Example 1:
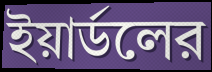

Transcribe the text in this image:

ইয়ার্ডলের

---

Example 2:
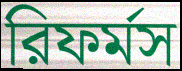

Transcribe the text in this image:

রিফর্মস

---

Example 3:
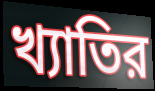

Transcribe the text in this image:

খ্যাতির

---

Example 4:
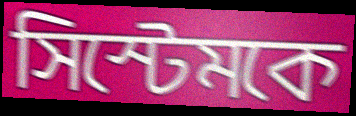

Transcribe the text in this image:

সিস্টেমকে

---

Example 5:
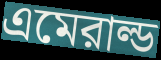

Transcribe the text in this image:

এমেরাল্ড